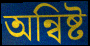
অন্বিষ্ট